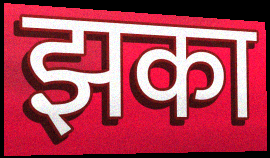
झका